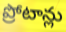
ప్రోటాన్లు